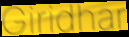
Giridhar